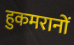
हुकमरानों